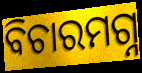
ବିଚାରମଗ୍ନ